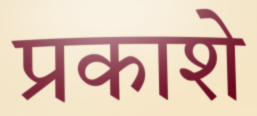
प्रकाशे